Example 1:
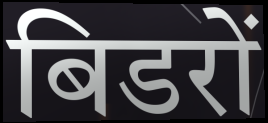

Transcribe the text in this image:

बिडरों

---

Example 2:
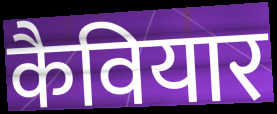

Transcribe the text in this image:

कैवियार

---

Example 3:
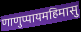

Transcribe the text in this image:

णाणुप्पायमहिमासु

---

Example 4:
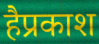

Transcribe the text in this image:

हैप्रकाश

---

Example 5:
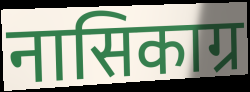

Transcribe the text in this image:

नासिकाग्र